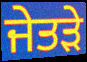
ਜੇਤੜੇ